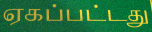
ஏகப்பட்டது